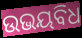
ଉଭୟବିଧ